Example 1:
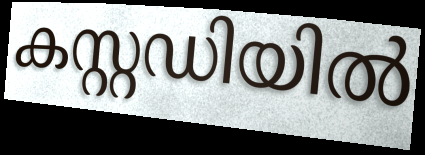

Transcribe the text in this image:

കസ്റ്റഡിയിൽ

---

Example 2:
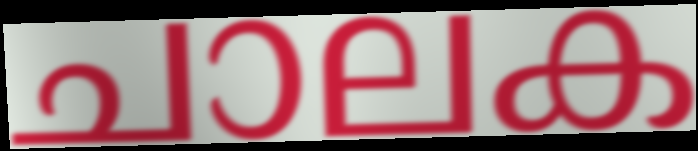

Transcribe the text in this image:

ചാലക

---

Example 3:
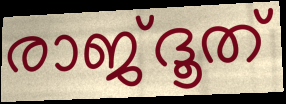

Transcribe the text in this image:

രാജ്ദൂത്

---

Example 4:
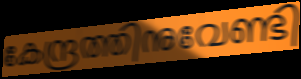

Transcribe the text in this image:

കേന്ദ്രത്തിനുവേണ്ടി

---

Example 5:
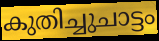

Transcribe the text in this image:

കുതിച്ചുചാട്ടം